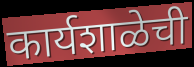
कार्यशाळेची